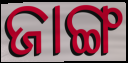
ଜାଙ୍ଗ